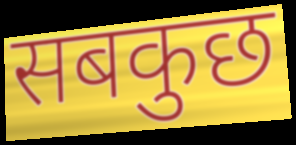
सबकुछ